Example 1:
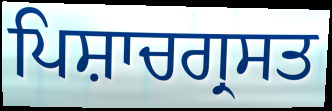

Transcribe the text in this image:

ਪਿਸ਼ਾਚਗ੍ਰਸਤ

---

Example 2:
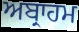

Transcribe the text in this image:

ਅਬ੍ਰਾਹਮ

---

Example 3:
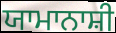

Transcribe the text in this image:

ਯਾਮਾਨਾਸ਼ੀ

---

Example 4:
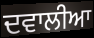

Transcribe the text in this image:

ਦਵਾਲੀਆ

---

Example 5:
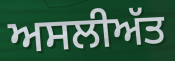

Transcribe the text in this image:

ਅਸਲੀਅੱਤ